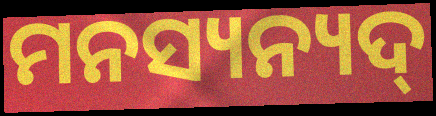
ମନସ୍ୟନ୍ୟଦ୍